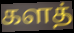
களத்